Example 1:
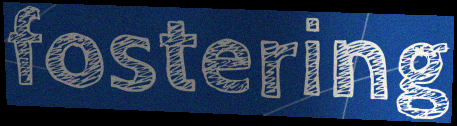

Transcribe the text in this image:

fostering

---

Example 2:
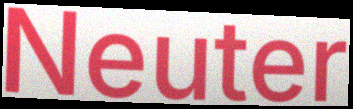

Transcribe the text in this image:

Neuter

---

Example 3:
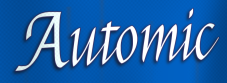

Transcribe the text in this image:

Automic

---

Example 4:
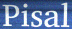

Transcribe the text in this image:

Pisal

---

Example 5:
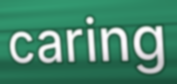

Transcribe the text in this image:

caring